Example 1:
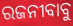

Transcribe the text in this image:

ରଜନୀବାବୁ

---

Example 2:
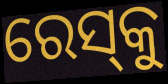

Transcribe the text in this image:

ରେସ୍‌କୁ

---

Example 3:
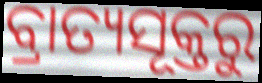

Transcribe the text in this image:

ବ୍ରାତ୍ୟସୂକ୍ତରୁ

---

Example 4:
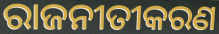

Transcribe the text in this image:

ରାଜନୀତୀକରଣ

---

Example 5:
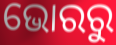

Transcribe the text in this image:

ଭୋରରୁ